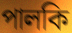
পালকি